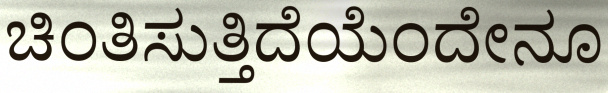
ಚಿಂತಿಸುತ್ತಿದೆಯೆಂದೇನೂ